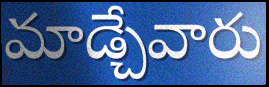
మాడ్చేవారు